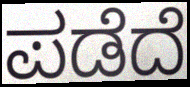
ಪಡೆದೆ